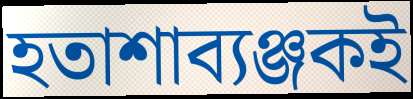
হতাশাব্যঞ্জকই